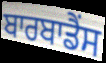
ਬਾਰਬਾਡੈਂਸ